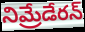
నిమ్రేడేరన్